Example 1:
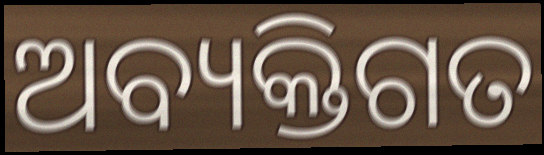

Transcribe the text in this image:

ଅବ୍ୟକ୍ତିଗତ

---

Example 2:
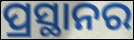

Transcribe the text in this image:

ପ୍ରସ୍ଥାନର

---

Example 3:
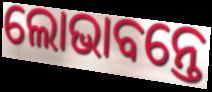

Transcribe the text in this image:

ଲୋଭାବନ୍ତେ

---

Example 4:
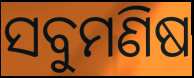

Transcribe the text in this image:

ସବୁମଣିଷ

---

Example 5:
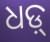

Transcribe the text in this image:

ଧଡ଼୍